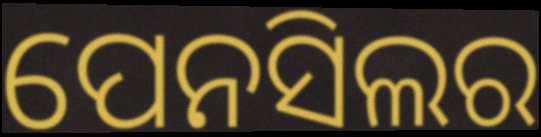
ପେନସିଲର